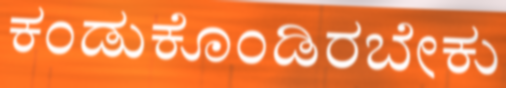
ಕಂಡುಕೊಂಡಿರಬೇಕು